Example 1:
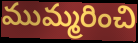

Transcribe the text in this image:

ముమ్మరించి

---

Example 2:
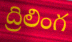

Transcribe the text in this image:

ద్రిలింగ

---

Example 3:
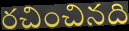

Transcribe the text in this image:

రచించినది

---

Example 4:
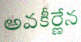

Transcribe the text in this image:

అవకీర్ణేన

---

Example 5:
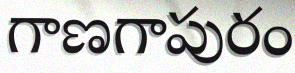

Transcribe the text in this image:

గాణగాపురం